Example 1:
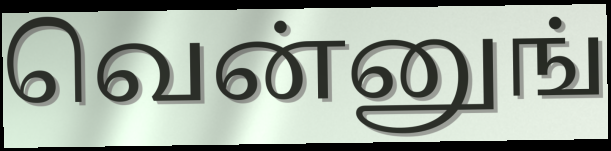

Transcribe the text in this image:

வென்னுங்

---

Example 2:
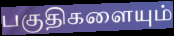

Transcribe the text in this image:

பகுதிகளையும்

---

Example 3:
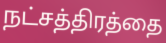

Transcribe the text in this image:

நட்சத்திரத்தை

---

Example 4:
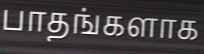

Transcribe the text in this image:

பாதங்களாக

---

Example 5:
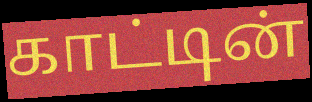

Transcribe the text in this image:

காட்டின்